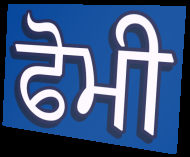
ਫੋਮੀ